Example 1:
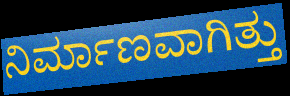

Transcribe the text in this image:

ನಿರ್ಮಾಣವಾಗಿತ್ತು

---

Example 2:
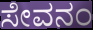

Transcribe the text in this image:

ಸೇವನಂ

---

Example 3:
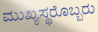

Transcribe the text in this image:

ಮುಖ್ಯಸ್ಥರೊಬ್ಬರು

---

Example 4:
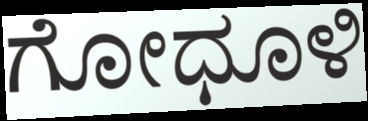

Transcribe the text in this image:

ಗೋಧೂಳಿ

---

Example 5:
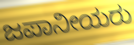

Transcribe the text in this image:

ಜಪಾನೀಯರು